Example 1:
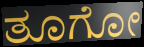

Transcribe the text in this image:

ತೂಗೋ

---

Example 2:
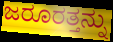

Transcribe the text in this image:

ಜರೂರತ್ತನ್ನು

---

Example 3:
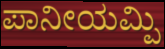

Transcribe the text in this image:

ಪಾನೀಯಮ್ಪಿ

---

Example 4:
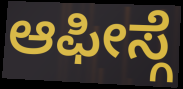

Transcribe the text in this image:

ಆಫೀಸ್ಗೆ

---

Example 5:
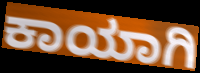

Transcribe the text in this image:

ಕಾಯಾಗಿ